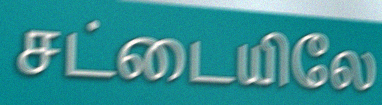
சட்டையிலே